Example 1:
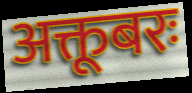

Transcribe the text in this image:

अक्तूबरः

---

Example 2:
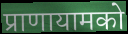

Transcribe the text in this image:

प्राणायामको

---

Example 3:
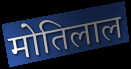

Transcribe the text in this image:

मोतिलाल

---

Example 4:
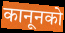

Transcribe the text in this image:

कानूनको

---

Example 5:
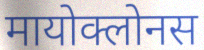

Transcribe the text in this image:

मायोक्लोनस